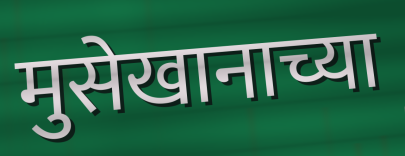
मुसेखानाच्या